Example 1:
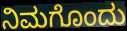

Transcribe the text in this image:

ನಿಮಗೊಂದು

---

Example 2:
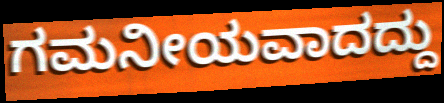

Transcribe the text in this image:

ಗಮನೀಯವಾದದ್ದು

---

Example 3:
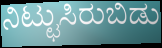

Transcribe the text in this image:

ನಿಟ್ಟುಸಿರುಬಿಡು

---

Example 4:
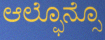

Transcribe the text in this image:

ಆಲ್ಫೊನ್ಸೊ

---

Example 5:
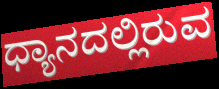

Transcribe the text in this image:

ಧ್ಯಾನದಲ್ಲಿರುವ